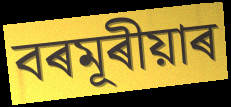
বৰমূৰীয়াৰ